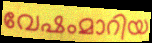
വേഷംമാറിയ